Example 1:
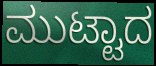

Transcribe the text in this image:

ಮುಟ್ಟಾದ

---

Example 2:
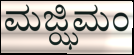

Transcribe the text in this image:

ಮಜ್ಝಿಮಂ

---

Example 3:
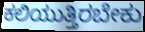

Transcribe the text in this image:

ಕಲಿಯುತ್ತಿರಬೇಕು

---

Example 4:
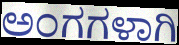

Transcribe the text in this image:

ಅಂಗಗಳಾಗಿ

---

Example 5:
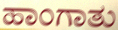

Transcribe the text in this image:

ಹಾಂಗಾತು